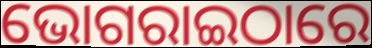
ଭୋଗରାଇଠାରେ